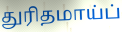
துரிதமாய்ப்